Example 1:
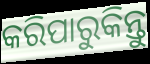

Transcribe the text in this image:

କରିପାରୁକିନ୍ତୁ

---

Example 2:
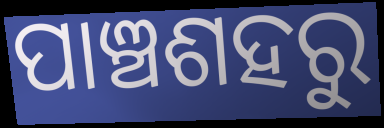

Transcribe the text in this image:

ପାଞ୍ଚଶହରୁ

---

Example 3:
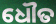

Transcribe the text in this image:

ଧୌତ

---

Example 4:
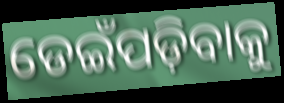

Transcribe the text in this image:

ଡେଇଁପଡ଼ିବାକୁ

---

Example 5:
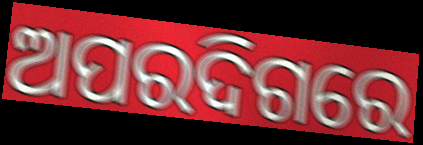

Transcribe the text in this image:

ଅପରଦିଗରେ